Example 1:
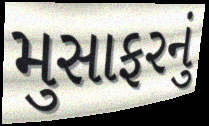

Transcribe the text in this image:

મુસાફરનું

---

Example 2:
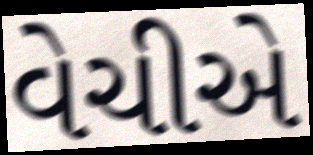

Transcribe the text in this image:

વેચીએ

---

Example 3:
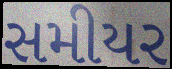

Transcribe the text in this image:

સમીયર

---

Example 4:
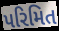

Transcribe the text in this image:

પરિમિત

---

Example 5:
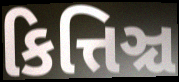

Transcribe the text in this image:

કિત્તિઞ્ચ